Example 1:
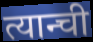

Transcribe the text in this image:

त्यान्ची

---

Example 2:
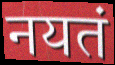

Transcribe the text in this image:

नयतं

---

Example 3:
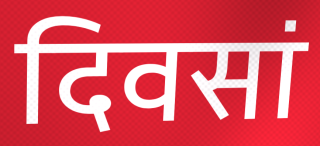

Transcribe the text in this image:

दिवसां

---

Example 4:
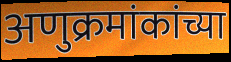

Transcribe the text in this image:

अणुक्रमांकांच्या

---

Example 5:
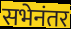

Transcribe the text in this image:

सभेनंतर